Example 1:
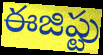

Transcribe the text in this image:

ఈజిప్టు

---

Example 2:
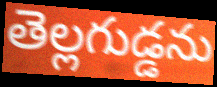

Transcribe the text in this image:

తెల్లగుడ్డను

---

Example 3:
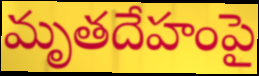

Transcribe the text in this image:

మృతదేహంపై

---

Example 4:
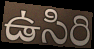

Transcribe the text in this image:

ఉసిరి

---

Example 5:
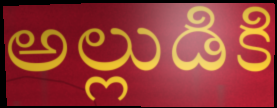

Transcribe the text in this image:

అల్లుడికి